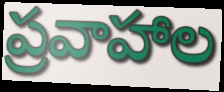
ప్రవాహాల